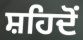
ਸ਼ਹਿਦੋਂ